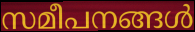
സമീപനങ്ങൾ